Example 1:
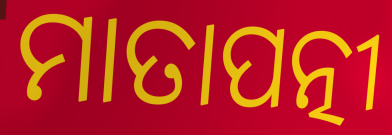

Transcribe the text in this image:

ମାତାପତ୍ନୀ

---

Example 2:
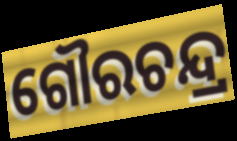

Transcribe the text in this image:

ଗୌରଚନ୍ଦ୍ର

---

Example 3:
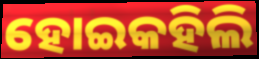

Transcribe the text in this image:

ହୋଇକହିଲି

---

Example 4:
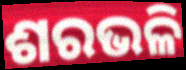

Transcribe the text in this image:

ଶରଭଳି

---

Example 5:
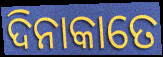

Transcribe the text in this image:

ଦିନାକାତେ